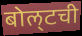
बोल्टची